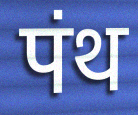
पंथ